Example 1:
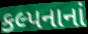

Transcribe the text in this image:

કલ્પનાનાં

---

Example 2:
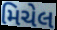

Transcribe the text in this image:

મિચેલ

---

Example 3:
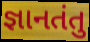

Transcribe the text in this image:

જ્ઞાનતંતુ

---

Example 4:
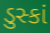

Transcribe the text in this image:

ડુસ્કાં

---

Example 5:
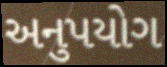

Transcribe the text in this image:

અનુપયોગ